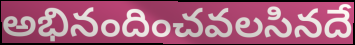
అభినందించవలసినదే